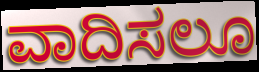
ವಾದಿಸಲೂ